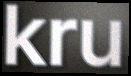
kru